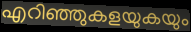
എറിഞ്ഞുകളയുകയും